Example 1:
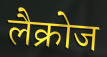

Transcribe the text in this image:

लैक्रोज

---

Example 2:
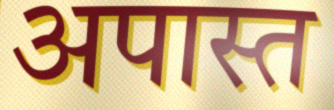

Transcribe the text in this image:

अपास्त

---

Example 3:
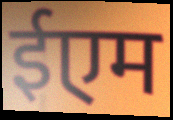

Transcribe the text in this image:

ईएम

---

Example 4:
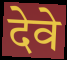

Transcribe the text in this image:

देवे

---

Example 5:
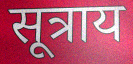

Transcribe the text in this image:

सूत्राय